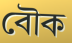
বৌক